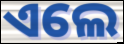
ଏଲେ